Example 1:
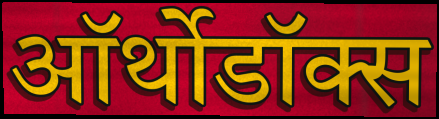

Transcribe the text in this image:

ऑर्थोडॉक्स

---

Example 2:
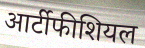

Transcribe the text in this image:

आर्टीफीशियल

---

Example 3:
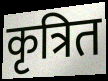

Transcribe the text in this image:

कृत्रित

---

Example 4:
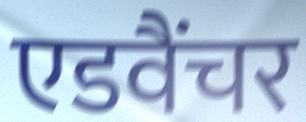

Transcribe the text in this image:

एडवैंचर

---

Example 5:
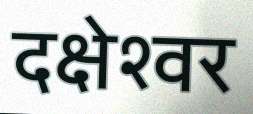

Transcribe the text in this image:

दक्षेश्वर